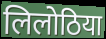
लिलोठिया